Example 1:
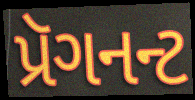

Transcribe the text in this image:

પ્રૅગનન્ટ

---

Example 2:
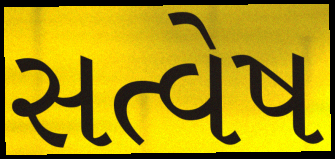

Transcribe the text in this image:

સત્વેષ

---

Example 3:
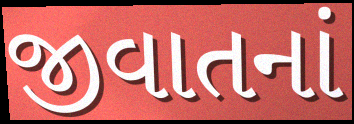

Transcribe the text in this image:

જીવાતનાં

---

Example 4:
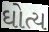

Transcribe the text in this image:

ઘોત્ય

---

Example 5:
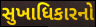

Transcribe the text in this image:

સુખાધિકારનો